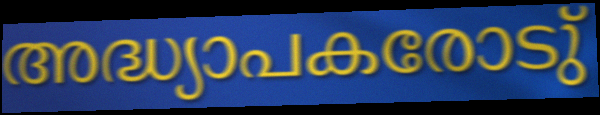
അദ്ധ്യാപകരോടു്